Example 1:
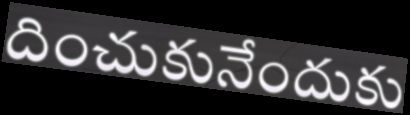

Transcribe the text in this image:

దించుకునేందుకు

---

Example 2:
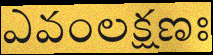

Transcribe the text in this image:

ఎవంలక్షణః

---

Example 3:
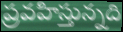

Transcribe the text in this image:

ప్రవహిస్తున్నది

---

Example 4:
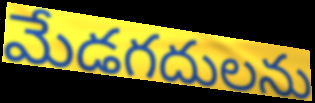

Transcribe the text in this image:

మేడగదులను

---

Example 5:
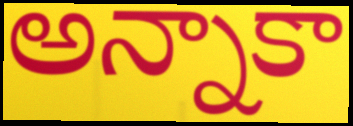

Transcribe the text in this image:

అన్నాకా